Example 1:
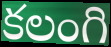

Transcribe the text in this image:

కలంగి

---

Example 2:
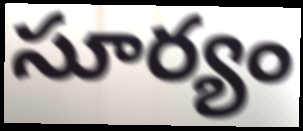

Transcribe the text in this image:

సూర్యం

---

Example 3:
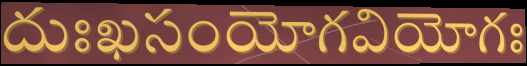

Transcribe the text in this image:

దుఃఖసంయోగవియోగః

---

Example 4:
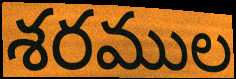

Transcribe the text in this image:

శరముల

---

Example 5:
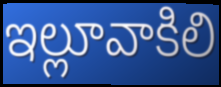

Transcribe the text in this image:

ఇల్లూవాకిలి